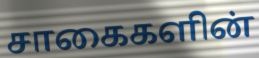
சாகைகளின்